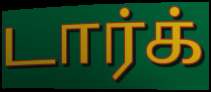
டார்க்